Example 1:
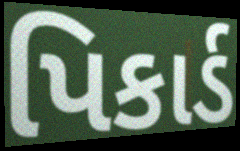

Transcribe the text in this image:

પિકાર્ડ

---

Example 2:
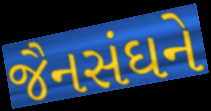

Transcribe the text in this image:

જૈનસંઘને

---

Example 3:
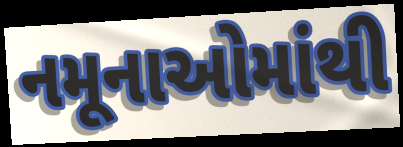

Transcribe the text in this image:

નમૂનાઓમાંથી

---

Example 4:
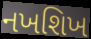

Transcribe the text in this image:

નખશિખ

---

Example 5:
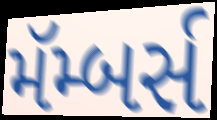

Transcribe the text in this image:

મૅમ્બર્સ